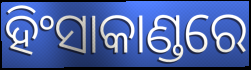
ହିଂସାକାଣ୍ଡରେ